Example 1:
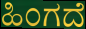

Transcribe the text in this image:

ಹಿಂಗದೆ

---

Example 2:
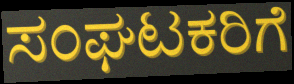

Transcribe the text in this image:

ಸಂಘಟಕರಿಗೆ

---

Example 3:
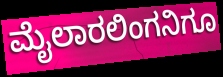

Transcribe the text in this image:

ಮೈಲಾರಲಿಂಗನಿಗೂ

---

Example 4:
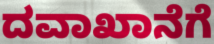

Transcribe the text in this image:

ದವಾಖಾನೆಗೆ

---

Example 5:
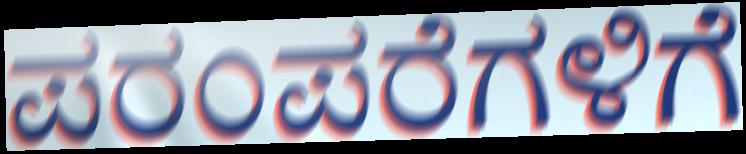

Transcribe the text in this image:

ಪರಂಪರೆಗಳಿಗೆ